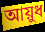
আয়ুধ